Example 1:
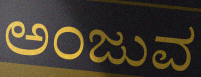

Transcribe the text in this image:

ಅಂಜುವ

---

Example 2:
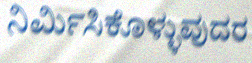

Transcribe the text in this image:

ನಿರ್ಮಿಸಿಕೊಳ್ಳುವುದರ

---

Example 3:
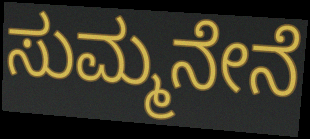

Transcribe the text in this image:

ಸುಮ್ಮನೇನೆ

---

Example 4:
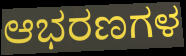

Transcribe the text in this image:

ಆಭರಣಗಳ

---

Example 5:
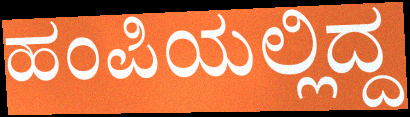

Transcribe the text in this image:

ಹಂಪಿಯಲ್ಲಿದ್ದ